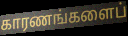
காரணங்களைப்